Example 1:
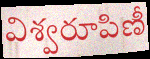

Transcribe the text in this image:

విశ్వరూపిణీ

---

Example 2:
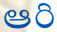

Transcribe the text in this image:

ఆరి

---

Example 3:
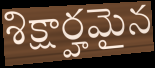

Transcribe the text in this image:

శిక్షార్హమైన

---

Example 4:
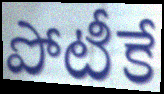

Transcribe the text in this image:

పోటీకే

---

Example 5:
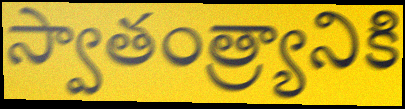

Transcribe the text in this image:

స్వాతంత్ర్యానికి